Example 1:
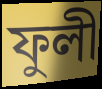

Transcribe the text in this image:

ফুলী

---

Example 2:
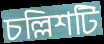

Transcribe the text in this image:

চল্লিশটি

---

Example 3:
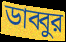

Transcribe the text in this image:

ডাব্বুর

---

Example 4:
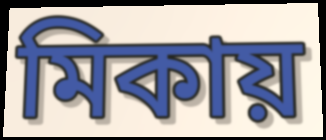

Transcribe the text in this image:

মিকায়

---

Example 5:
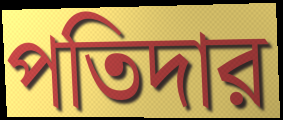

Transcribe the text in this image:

পতিদার